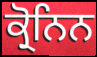
ਕ੍ਰੋਨਿਨ